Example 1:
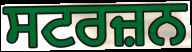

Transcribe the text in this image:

ਸਟਰਜ਼ਨ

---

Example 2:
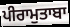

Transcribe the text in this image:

ਪੀਰਾਮੁਤਾਬਾ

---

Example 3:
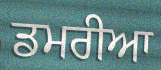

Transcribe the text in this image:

ਡਮਰੀਆ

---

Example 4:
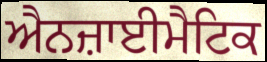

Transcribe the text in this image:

ਐਨਜ਼ਾਈਮੈਟਿਕ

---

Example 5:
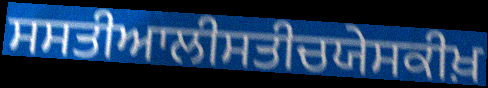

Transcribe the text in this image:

ਸਸਤੀਆਲੀਸਤੀਚਯੇਸਕੀਖ਼